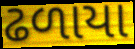
ઢળાયા